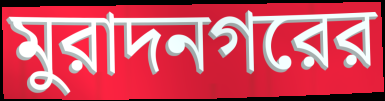
মুরাদনগরের